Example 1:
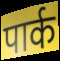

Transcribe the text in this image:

पार्क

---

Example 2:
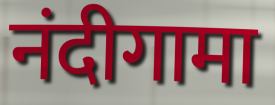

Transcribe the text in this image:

नंदीगामा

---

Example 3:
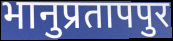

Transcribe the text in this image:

भानुप्रतापपुर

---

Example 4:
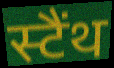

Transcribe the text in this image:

स्टैंथ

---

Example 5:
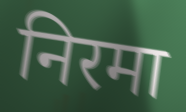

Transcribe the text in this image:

निरमा